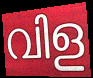
വിള